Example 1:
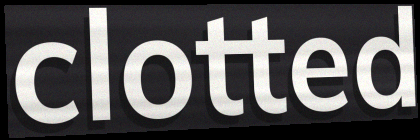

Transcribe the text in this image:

clotted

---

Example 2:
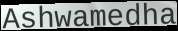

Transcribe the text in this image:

Ashwamedha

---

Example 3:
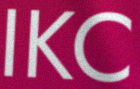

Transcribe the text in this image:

IKC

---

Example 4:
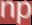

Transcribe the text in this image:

np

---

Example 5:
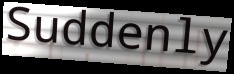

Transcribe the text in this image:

Suddenly